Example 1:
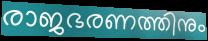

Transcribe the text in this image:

രാജഭരണത്തിനും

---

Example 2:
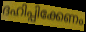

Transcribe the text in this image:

ദഹിപ്പിക്കേണം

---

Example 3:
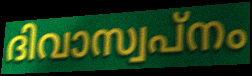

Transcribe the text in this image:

ദിവാസ്വപ്നം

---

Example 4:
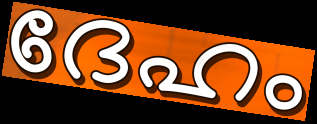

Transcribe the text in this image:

ദേഹം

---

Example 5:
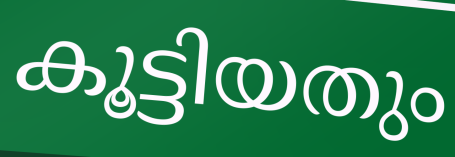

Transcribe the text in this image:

കൂട്ടിയതും